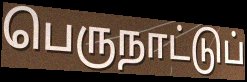
பெருநாட்டுப்